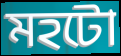
মহটো